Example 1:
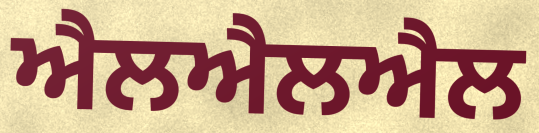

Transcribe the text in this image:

ਐਲਐਲਐਲ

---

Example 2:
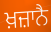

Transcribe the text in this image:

ਖ਼ਜ਼ਾਨੈ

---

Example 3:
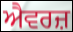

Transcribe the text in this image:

ਐਵਰਜ਼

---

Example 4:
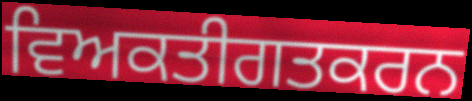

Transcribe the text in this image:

ਵਿਅਕਤੀਗਤਕਰਨ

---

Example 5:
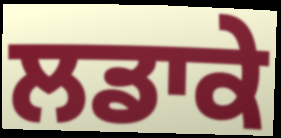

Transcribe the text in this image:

ਲਡਾਕੇ